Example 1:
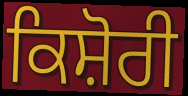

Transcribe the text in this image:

ਕਿਸ਼ੋਰੀ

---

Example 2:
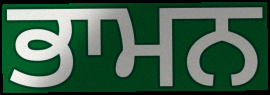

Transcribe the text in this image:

ਭਾਮਨ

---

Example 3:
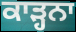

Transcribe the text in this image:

ਕਾੜ੍ਹਨਾ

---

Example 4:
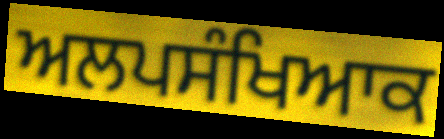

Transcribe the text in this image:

ਅਲਪਸੰਖਿਆਕ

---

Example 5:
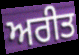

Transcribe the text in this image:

ਅਰੀਤ